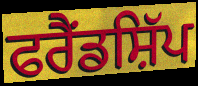
ਫਰੈਂਡਸ਼ਿੱਪ